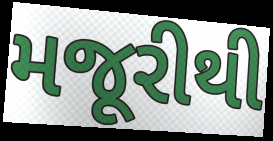
મજૂરીથી